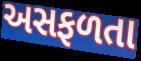
અસફળતા